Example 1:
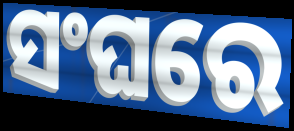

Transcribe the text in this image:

ସଂଘରେ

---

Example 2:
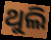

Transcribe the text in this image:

ଥୁଲି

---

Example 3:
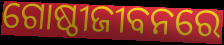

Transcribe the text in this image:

ଗୋଷ୍ଠୀଜୀବନରେ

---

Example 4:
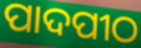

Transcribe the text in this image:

ପାଦପୀଠ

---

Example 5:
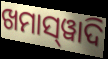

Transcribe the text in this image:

ଖମାସ୍‌ୱାଦି